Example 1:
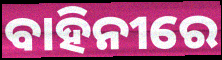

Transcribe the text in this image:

ବାହିନୀରେ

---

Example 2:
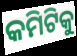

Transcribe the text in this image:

କମିଟିକୁ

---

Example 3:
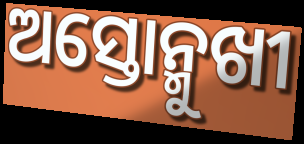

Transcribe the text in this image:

ଅସ୍ତୋନ୍ମୁଖୀ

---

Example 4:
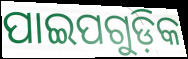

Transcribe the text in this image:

ପାଇପଗୁଡ଼ିକ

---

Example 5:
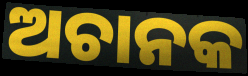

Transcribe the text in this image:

ଅଚାନକ